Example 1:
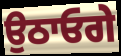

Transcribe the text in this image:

ਉਠਾਓਗੇ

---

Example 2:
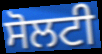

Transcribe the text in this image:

ਸੋਲਟੀ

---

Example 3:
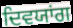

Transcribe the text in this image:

ਦਿਵਯਾਂਗ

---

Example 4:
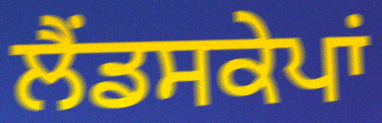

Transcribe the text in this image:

ਲੈਂਡਸਕੇਪਾਂ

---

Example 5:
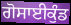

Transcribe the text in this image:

ਗੋਸਾਈਕੁੰਡ